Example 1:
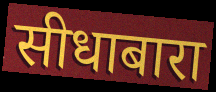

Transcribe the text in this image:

सीधाबारा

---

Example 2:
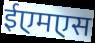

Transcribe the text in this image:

ईएमएस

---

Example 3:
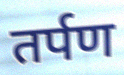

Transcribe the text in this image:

तर्पण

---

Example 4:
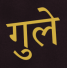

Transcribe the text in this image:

गुले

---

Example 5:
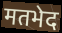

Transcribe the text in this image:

मतभेद